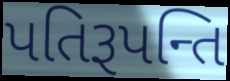
પતિરૂપન્તિ